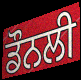
ਡੌਨਲੀ